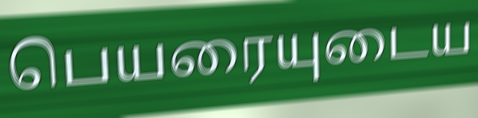
பெயரையுடைய